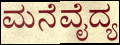
ಮನೆವೈದ್ಯ